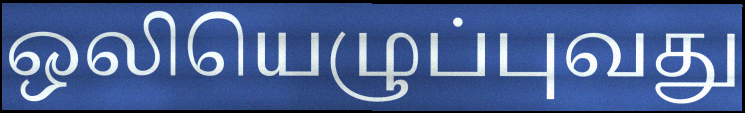
ஒலியெழுப்புவது